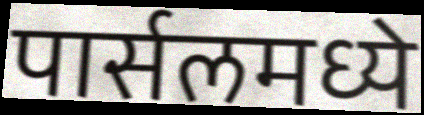
पार्सलमध्ये